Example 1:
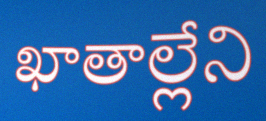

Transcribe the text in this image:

ఖాతాల్లేని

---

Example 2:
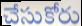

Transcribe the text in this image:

చేసుకోరు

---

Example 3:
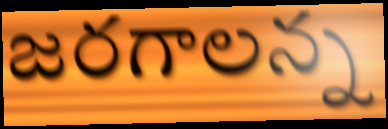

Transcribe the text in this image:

జరగాలన్న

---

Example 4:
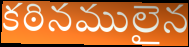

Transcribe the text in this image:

కఠినములైన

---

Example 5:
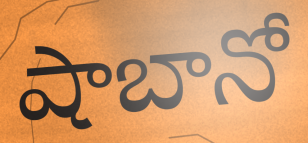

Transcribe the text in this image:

షాబానో